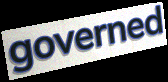
governed